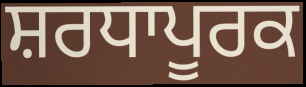
ਸ਼ਰਧਾਪੂਰਕ